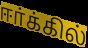
ஈர்க்கில்